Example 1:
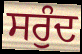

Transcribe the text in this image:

ਸਰੁੰਦ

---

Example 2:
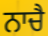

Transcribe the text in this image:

ਨਾਚੈ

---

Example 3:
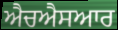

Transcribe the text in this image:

ਐਚਐਸਆਰ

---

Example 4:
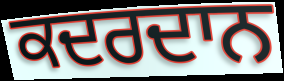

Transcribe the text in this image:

ਕਦਰਦਾਨ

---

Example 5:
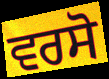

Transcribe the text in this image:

ਵਰਸੋ